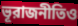
ভূরাজনীতিও